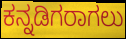
ಕನ್ನಡಿಗರಾಗಲು